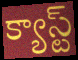
క్యాస్ట్